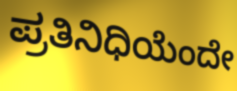
ಪ್ರತಿನಿಧಿಯೆಂದೇ